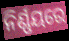
ନିର୍ଣ୍ଣୟରେ